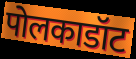
पोलकाडॉट